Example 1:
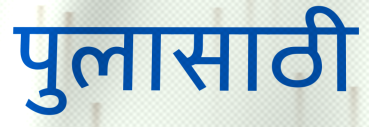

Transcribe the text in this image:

पुलासाठी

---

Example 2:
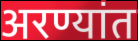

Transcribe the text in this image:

अरण्यांत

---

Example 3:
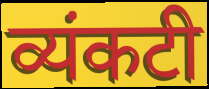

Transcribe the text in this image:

व्यंकटी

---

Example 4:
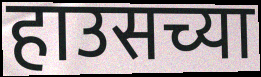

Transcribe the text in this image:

हाउसच्या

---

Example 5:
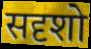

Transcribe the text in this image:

सदृशो